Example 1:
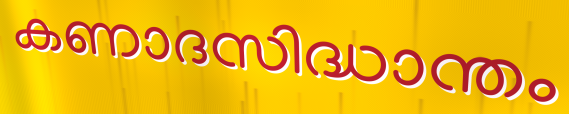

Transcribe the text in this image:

കണാദസിദ്ധാന്തം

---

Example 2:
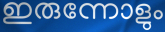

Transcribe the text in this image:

ഇരുന്നോളും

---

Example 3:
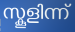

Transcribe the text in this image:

സ്കൂളിന്ന്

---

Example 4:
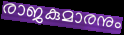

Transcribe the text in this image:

രാജകുമാരനും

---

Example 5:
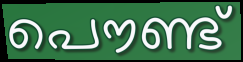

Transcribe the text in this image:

പൌണ്ട്